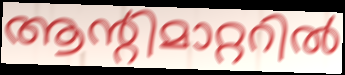
ആന്റിമാറ്ററിൽ